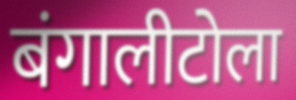
बंगालीटोला